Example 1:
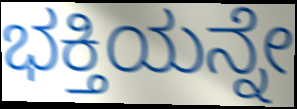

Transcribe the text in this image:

ಭಕ್ತಿಯನ್ನೇ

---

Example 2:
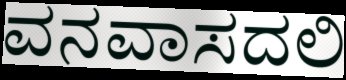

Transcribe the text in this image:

ವನವಾಸದಲಿ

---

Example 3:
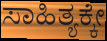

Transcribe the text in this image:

ಸಾಹಿತ್ಯಕ್ಕೇ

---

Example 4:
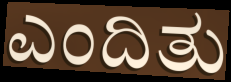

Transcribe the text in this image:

ಎಂದಿತು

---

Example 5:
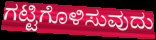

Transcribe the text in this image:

ಗಟ್ಟಿಗೊಳಿಸುವುದು